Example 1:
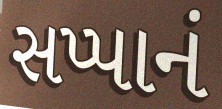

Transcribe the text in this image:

સપ્પાનં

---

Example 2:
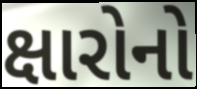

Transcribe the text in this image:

ક્ષારોનો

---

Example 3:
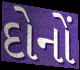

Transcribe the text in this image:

દોનોં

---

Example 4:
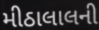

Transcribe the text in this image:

મીઠાલાલની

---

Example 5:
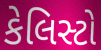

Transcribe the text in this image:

કેલિસ્ટો